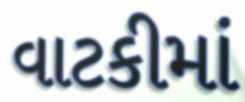
વાટકીમાં